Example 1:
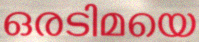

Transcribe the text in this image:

ഒരടിമയെ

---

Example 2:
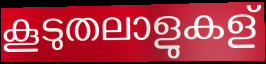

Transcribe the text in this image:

കൂടുതലാളുകള്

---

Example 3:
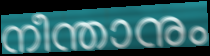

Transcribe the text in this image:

നീന്താനും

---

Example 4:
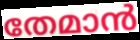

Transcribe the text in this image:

തേമാൻ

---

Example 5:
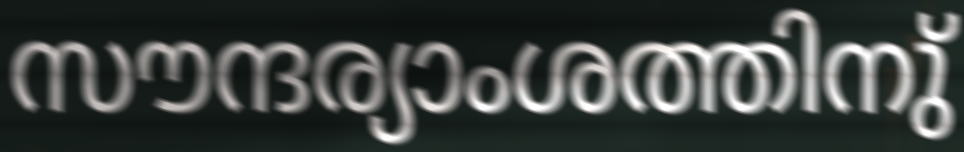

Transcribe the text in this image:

സൗന്ദര്യാംശത്തിനു്